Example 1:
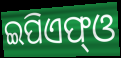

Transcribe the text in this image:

ଇପିଏଫ୍ଓ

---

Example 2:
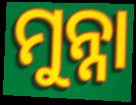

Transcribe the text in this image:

ମୁନ୍ନା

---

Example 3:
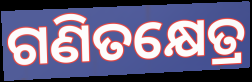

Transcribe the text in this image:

ଗଣିତକ୍ଷେତ୍ର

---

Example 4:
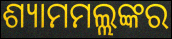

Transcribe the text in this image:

ଶ୍ୟାମମଲ୍ଲଙ୍କର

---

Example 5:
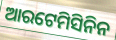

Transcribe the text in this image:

ଆରଟେମିସିନିନ